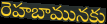
రెహబామునకు